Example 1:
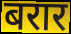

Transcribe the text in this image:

बरार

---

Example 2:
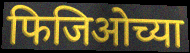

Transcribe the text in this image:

फिजिओच्या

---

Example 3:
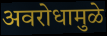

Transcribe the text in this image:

अवरोधामुळे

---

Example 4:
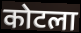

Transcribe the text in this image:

कोटला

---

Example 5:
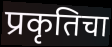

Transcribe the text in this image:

प्रकृतिचा